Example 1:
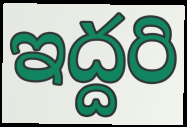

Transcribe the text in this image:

ఇద్దరి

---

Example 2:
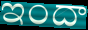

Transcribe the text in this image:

ఇందా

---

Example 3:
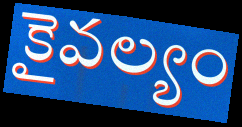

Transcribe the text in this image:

కైవల్యం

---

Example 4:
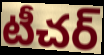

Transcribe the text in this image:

టీచర్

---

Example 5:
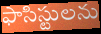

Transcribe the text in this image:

ఫాసిస్టులను